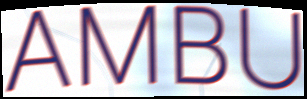
AMBU